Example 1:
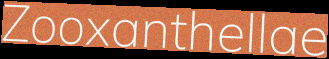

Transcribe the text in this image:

Zooxanthellae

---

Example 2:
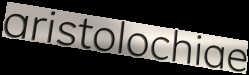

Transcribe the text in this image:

aristolochiae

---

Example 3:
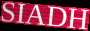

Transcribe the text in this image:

SIADH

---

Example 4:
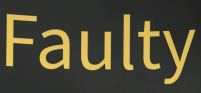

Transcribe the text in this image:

Faulty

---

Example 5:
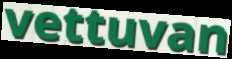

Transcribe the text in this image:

vettuvan